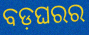
ବଡ଼ଘରର